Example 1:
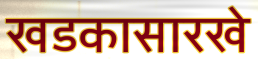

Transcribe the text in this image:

खडकासारखे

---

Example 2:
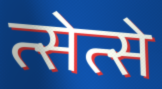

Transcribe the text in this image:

त्सेत्से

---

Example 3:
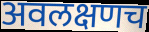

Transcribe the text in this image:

अवलक्षणच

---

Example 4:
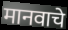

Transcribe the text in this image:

मानवाचे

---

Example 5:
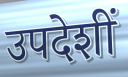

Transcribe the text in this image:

उपदेशीं